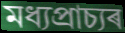
মধ্যপ্ৰাচ্যৰ